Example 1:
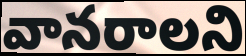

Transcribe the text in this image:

వానరాలని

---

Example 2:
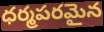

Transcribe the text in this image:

ధర్మపరమైన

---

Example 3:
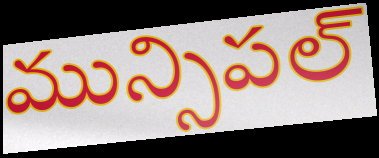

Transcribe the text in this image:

మున్సిపల్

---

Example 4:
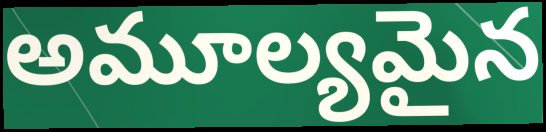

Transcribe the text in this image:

అమూల్యమైన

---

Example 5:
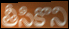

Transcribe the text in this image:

తీసికొని